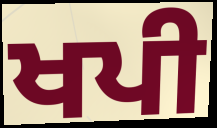
ਖਪੀ